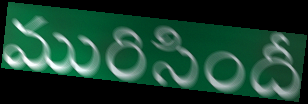
మురిసిందీ